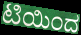
ಟಿಯಿಂದ